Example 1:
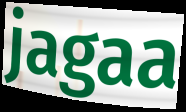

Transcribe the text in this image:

jagaa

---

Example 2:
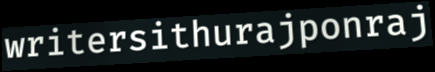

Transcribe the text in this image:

writersithurajponraj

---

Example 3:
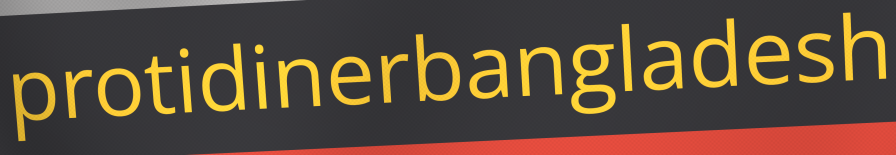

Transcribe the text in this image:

protidinerbangladesh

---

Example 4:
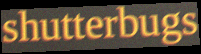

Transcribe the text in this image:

shutterbugs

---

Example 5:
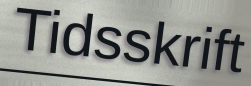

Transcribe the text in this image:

Tidsskrift